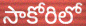
సాకోరిలో